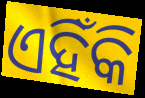
ଏହିଁକି